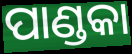
ପାଣ୍ଡକା